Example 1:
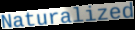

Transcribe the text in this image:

Naturalized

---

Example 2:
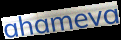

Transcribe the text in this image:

ahameva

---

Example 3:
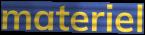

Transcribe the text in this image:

materiel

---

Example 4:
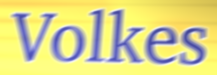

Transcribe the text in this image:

Volkes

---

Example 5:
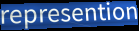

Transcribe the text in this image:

represention